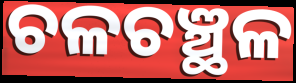
ଚଳଚଞ୍ଛଳ